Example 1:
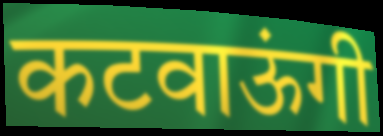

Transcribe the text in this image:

कटवाऊंगी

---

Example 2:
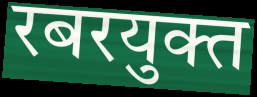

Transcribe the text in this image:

रबरयुक्त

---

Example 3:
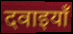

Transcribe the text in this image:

दवाइयाँ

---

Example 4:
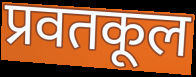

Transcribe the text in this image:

प्रवतकूल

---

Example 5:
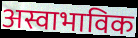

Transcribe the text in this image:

अस्वाभाविक